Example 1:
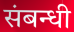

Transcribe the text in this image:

संबन्‍धी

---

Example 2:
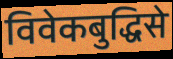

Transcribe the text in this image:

विवेकबुद्धिसे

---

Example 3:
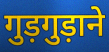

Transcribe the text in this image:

गुड़गुड़ाने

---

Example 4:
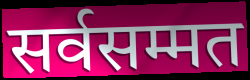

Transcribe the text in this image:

सर्वसम्मत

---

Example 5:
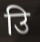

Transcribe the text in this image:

उि